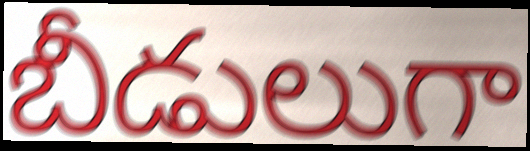
బీడులుగా